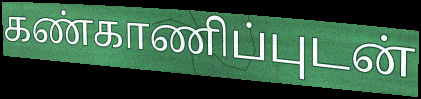
கண்காணிப்புடன்